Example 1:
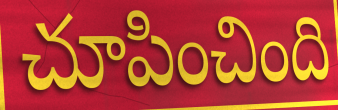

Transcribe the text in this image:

చూపించింది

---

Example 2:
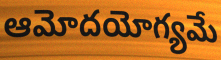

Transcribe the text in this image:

ఆమోదయోగ్యమే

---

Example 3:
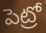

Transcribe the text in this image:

పెట్రో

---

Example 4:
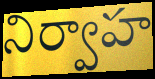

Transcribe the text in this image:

నిర్వాహ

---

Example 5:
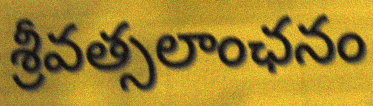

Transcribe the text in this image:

శ్రీవత్సలాంఛనం